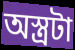
অস্ত্রটা